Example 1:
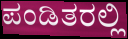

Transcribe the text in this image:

ಪಂಡಿತರಲ್ಲಿ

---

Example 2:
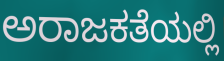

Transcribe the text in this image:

ಅರಾಜಕತೆಯಲ್ಲಿ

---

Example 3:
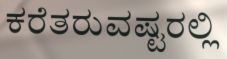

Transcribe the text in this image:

ಕರೆತರುವಷ್ಟರಲ್ಲಿ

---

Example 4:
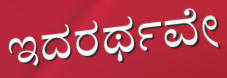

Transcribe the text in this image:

ಇದರರ್ಥವೇ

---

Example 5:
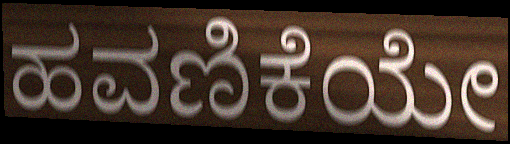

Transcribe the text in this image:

ಹವಣಿಕೆಯೇ